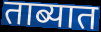
ताब्यात